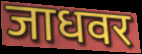
जाधवर